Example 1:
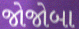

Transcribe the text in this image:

જોજોબા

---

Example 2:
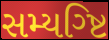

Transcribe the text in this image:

સમ્યગ્ષ્ટિ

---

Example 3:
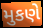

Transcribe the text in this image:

મુકણે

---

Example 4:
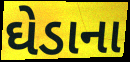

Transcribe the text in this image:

ઘેડાના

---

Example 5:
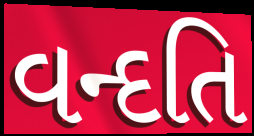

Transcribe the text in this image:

વન્દતિ